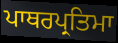
ਪਾਥਰਪ੍ਰਤਿਮਾ